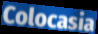
Colocasia